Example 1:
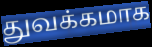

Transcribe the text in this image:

துவக்கமாக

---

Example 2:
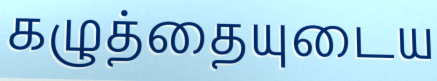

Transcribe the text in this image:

கழுத்தையுடைய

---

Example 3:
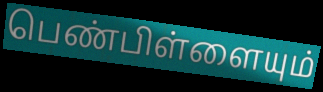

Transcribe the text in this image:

பெண்பிள்ளையும்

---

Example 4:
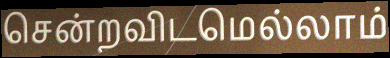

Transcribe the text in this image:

சென்றவிடமெல்லாம்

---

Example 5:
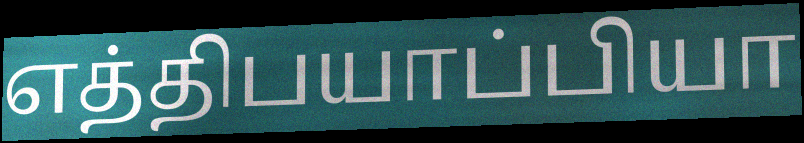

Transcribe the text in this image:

எத்திபயாப்பியா